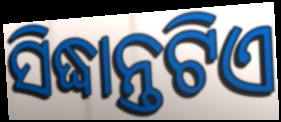
ସିଦ୍ଧାନ୍ତଟିଏ